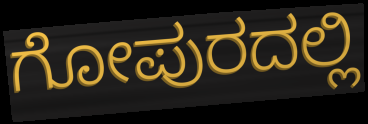
ಗೋಪುರದಲ್ಲಿ